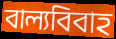
বাল্যবিবাহ